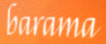
barama